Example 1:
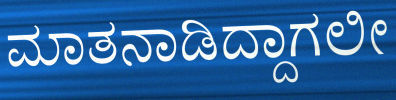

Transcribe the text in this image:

ಮಾತನಾಡಿದ್ದಾಗಲೀ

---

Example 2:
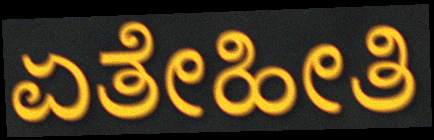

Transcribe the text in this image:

ಏತೇಹೀತಿ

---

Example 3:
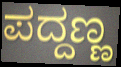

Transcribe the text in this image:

ಪದ್ದಣ್ಣ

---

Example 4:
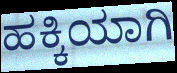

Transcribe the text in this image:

ಹಕ್ಕಿಯಾಗಿ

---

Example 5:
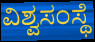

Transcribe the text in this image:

ವಿಶ್ವಸಂಸ್ಥೆ